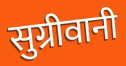
सुग्रीवानी